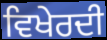
ਵਿਖੇਰਦੀ